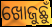
ଖୋଜୁଛୁଁ